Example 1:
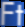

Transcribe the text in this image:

Ft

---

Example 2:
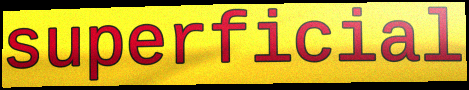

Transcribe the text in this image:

superficial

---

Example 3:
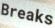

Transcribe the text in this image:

Breaks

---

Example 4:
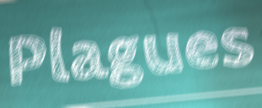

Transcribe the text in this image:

Plagues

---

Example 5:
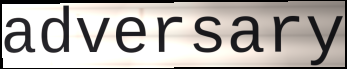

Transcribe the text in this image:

adversary